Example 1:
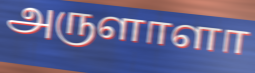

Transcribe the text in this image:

அருளாளா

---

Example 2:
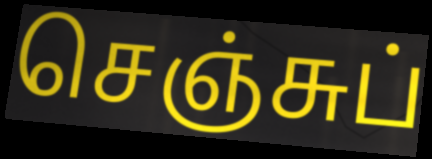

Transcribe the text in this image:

செஞ்சுப்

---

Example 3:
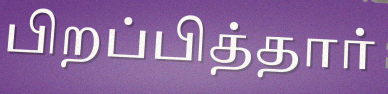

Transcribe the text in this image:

பிறப்பித்தார்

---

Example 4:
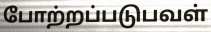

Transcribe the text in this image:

போற்றப்படுபவள்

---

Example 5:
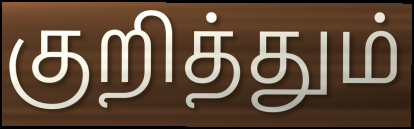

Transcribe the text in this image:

குறித்தும்